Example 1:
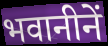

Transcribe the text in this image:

भवानीनें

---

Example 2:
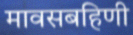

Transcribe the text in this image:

मावसबहिणी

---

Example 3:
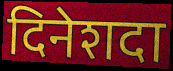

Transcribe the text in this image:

दिनेशदा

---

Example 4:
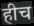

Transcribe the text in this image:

हीच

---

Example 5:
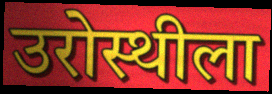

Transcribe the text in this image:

उरोस्थीला